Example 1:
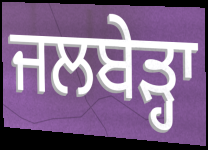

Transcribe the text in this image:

ਜਲਬੇੜ੍ਹਾ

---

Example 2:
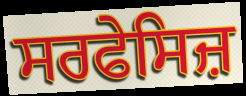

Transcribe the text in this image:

ਸਰਫੇਸਿਜ਼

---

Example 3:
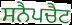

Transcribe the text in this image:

ਸਨੈਪਚੈਟ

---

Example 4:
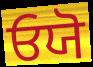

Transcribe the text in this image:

ਓਯੋ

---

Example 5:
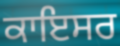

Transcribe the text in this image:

ਕਾਇਸਰ